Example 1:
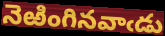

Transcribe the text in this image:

నెఱింగినవాఁడు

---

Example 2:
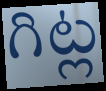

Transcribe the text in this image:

గిట్ల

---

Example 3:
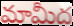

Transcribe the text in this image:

మామీద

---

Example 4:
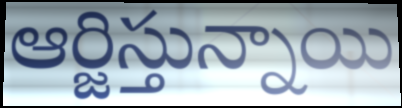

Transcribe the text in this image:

ఆర్జిస్తున్నాయి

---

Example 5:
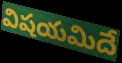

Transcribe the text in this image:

విషయమిదే